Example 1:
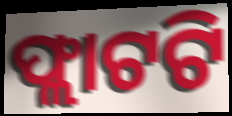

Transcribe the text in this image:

ଫ୍ଲାଟଟି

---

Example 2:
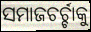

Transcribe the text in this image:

ସମାଜଚର୍ଚ୍ଚାକୁ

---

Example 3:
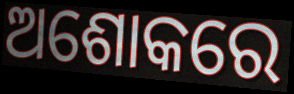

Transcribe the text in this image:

ଅଶୋକରେ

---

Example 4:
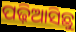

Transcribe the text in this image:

ପଢ଼ିଆସିଛୁ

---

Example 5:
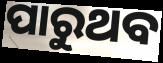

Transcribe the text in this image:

ପାରୁଥବ